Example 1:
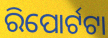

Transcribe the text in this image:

ରିପୋର୍ଟଟା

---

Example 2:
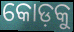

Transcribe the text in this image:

କୋଡ଼କୁ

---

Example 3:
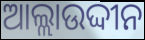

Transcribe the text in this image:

ଆଲ୍ଲାଉଦ୍ଦୀନ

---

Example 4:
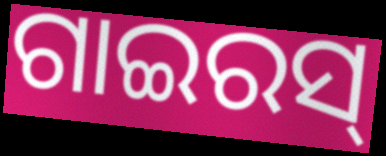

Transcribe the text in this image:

ଗାଇରସ୍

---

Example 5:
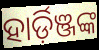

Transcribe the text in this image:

ହାର୍ଡ଼ିଞ୍ଜଙ୍କ